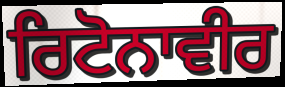
ਰਿਟੋਨਾਵੀਰ